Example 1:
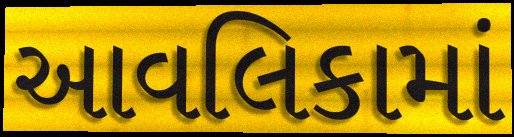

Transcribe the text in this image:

આવલિકામાં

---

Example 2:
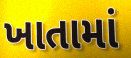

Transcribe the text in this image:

ખાતામાં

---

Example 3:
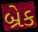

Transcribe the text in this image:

બ્રેક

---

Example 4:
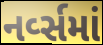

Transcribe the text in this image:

નર્વ્સમાં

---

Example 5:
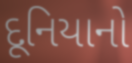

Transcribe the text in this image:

દૂનિયાનો